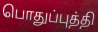
பொதுப்புத்தி